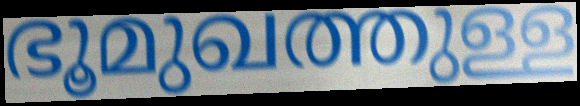
ഭൂമുഖത്തുള്ള